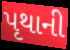
પૃથાની